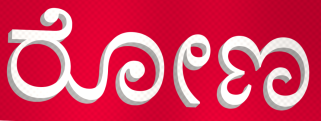
ರೋಣ